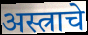
अस्त्राचे